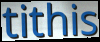
tithis